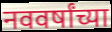
नववर्षांच्या